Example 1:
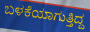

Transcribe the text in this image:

ಬಳಕೆಯಾಗುತ್ತಿದ್ದ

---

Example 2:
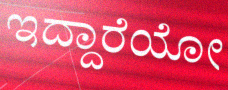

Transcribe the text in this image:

ಇದ್ದಾರೆಯೋ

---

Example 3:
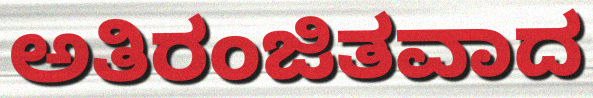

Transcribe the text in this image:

ಅತಿರಂಜಿತವಾದ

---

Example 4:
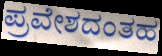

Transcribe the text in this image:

ಪ್ರವೇಶದಂತಹ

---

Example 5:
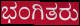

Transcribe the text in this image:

ಭಂಗಿತರು